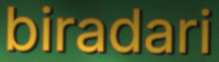
biradari